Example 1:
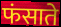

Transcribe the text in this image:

फंसाते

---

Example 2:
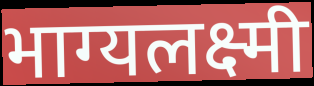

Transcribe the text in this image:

भाग्यलक्ष्मी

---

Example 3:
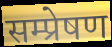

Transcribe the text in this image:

सम्प्रेषण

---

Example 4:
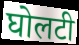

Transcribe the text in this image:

घोलटी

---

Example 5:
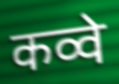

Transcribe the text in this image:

कव्वे